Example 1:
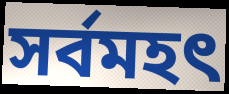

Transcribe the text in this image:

সর্বমহৎ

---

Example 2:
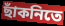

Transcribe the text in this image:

ছাঁকনিতে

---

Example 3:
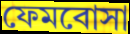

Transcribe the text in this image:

ফেমবোসা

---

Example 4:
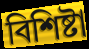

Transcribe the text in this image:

বিশিষ্টা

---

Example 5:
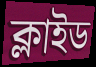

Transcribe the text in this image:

ক্লাইড